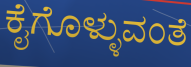
ಕೈಗೊಳ್ಳುವಂತೆ